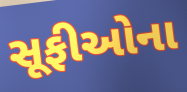
સૂફીઓના